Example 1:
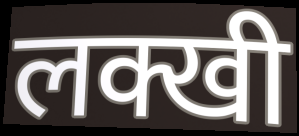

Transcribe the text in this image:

लक्खी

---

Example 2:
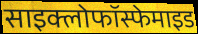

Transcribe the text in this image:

साइक्लोफॉस्फेमाइड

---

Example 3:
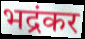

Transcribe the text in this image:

भद्रंकर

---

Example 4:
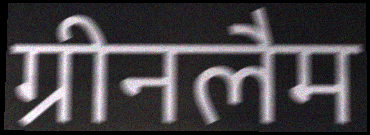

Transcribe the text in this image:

ग्रीनलैम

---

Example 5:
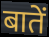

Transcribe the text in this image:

बातें